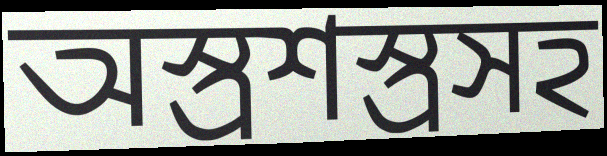
অস্ত্রশস্ত্রসহ